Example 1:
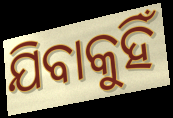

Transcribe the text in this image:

ଯିବାକୁହିଁ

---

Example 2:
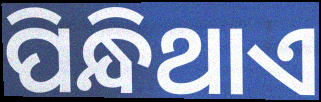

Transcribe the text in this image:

ପିନ୍ଧିଥାଏ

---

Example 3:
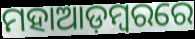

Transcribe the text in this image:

ମହାଆଡ଼ମ୍ୱରରେ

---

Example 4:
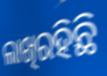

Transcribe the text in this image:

ଲାଖିରହିଛି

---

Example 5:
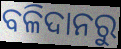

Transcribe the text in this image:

ବଳିଦାନରୁ